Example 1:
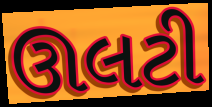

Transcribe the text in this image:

ઊલટી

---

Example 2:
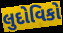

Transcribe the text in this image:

લુદોવિકો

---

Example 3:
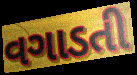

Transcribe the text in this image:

વગાડતી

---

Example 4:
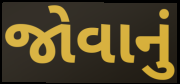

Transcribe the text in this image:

જોવાનું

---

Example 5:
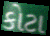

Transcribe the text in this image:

કોટા